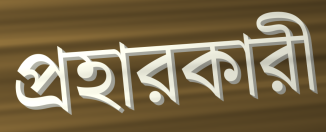
প্রহারকারী